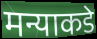
मन्याकडे